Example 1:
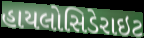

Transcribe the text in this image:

હાયલોસિડેરાઇટ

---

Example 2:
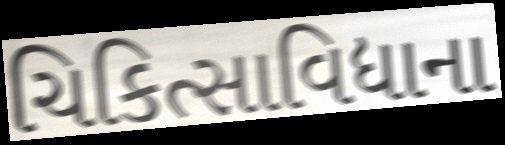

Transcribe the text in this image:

ચિકિત્સાવિદ્યાના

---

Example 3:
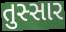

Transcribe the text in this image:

તુસ્સાર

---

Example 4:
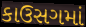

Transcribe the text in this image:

કાઉસગમાં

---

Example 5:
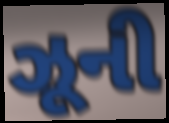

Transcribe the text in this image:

ઝૂની